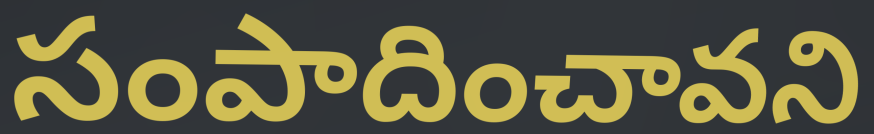
సంపాదించావని